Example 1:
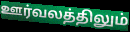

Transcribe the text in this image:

ஊர்வலத்திலும்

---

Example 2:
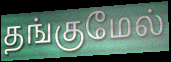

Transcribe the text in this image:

தங்குமேல்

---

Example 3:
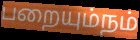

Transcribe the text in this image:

பறையும்நம்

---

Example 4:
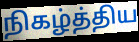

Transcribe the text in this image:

நிகழ்த்திய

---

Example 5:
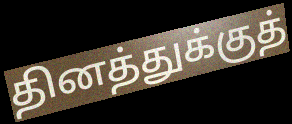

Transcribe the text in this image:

தினத்துக்குத்